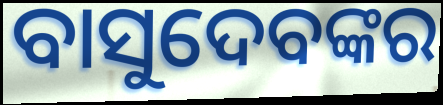
ବାସୁଦେବଙ୍କର